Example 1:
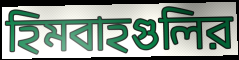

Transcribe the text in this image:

হিমবাহগুলির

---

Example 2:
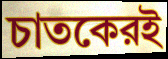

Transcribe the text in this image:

চাতকেরই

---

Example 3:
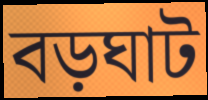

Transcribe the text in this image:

বড়ঘাট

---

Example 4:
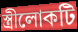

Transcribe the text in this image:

স্ত্রীলোকটি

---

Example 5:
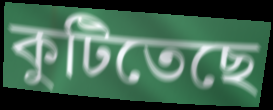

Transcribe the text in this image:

কুটিতেছে